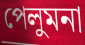
পেলুমনা